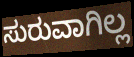
ಸುರುವಾಗಿಲ್ಲ